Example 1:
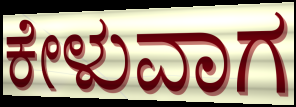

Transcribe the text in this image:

ಕೇಳುವಾಗ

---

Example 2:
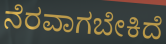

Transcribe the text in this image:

ನೆರವಾಗಬೇಕಿದೆ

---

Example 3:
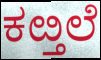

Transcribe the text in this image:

ಕೞ್ತಲೆ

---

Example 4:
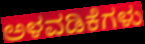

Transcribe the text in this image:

ಅಳವಡಿಕೆಗಳು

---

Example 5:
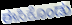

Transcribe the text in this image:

ಈಸಿಕೊಂಡು